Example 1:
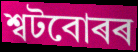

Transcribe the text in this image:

শ্বটবোৰৰ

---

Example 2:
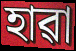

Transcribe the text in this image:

হাৱা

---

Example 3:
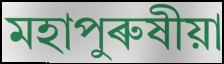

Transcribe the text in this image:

মহাপুৰুষীয়া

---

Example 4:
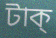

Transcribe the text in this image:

টাক্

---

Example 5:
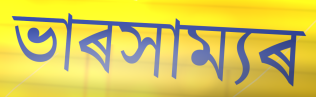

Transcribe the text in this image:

ভাৰসাম্যৰ